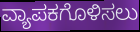
ವ್ಯಾಪಕಗೊಳಿಸಲು